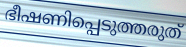
ഭീഷണിപ്പെടുത്തരുത്